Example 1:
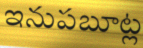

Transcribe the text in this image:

ఇనుపబూట్ల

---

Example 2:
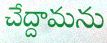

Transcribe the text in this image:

చేద్దామను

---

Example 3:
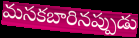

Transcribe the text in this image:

మసకబారినప్పుడు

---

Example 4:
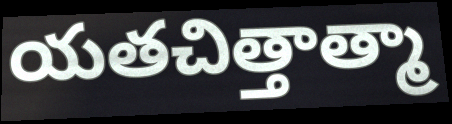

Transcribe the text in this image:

యతచిత్తాత్మా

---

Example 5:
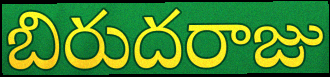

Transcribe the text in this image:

బిరుదరాజు